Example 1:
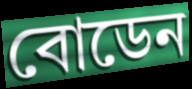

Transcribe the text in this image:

বোডেন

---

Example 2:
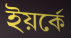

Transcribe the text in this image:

ইয়র্কে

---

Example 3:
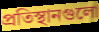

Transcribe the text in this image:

প্রতিস্থানগুলো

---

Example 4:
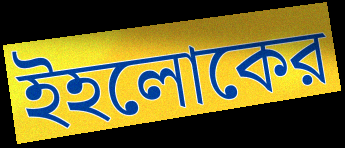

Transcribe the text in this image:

ইহলোকের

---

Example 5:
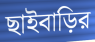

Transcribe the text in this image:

ছাইবাড়ির